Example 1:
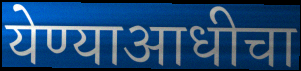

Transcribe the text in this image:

येण्याआधीचा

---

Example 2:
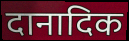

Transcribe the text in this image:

दानादिक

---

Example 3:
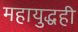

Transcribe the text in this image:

महायुद्धही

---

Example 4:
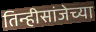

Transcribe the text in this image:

तिन्हीसांजेच्या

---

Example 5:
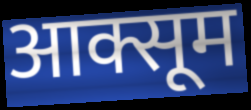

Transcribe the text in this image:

आक्सूम